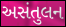
અસંતુલન